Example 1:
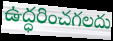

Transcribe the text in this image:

ఉద్ధరించగలదు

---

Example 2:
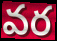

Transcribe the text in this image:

వర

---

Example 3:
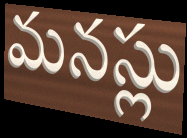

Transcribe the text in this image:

మనస్లు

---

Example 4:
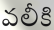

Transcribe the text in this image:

వలీకి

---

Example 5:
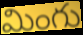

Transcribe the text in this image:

మింగు